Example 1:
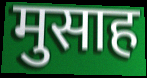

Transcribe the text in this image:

मुसाह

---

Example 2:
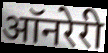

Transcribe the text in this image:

ऑनरेरी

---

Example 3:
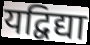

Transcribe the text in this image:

यद्विद्या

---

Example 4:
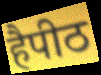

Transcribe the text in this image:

हैपीठ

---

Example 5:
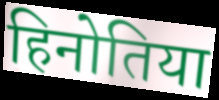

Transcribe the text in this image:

हिनोतिया